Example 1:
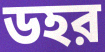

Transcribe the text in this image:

ডহর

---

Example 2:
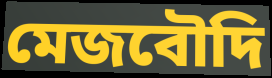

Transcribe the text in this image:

মেজবৌদি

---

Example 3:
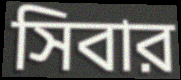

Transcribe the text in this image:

সিবার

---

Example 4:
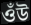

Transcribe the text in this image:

ওঁউ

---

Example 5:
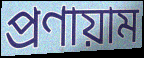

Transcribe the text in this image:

প্রণায়াম